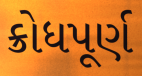
ક્રોધપૂર્ણ